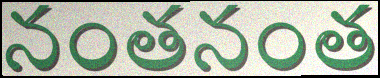
నంతనంత